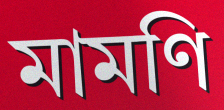
মামণি